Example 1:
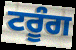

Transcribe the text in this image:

ਟਰੂੰਗ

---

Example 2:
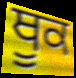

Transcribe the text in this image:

ਥੂਕ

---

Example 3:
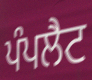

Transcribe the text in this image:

ਪੰਪਲੈਟ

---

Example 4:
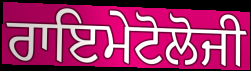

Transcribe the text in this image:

ਰਾਇਮੇਟੋਲੋਜੀ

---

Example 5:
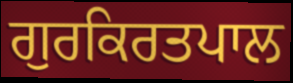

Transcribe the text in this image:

ਗੁਰਕਿਰਤਪਾਲ